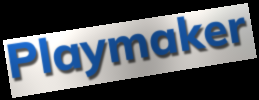
Playmaker